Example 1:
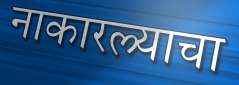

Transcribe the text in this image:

नाकारल्याचा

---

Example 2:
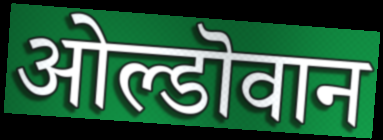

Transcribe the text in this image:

ओल्डॊवान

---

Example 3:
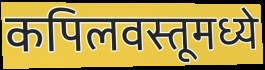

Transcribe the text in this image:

कपिलवस्तूमध्ये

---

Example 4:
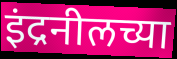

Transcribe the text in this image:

इंद्रनीलच्या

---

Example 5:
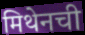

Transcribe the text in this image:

मिथेनची